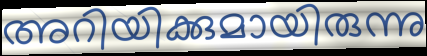
അറിയിക്കുമായിരുന്നു